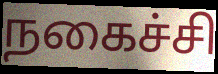
நகைச்சி